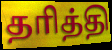
தரித்தி